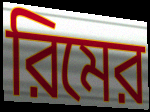
রিমের